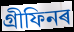
গ্ৰীফিনৰ